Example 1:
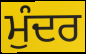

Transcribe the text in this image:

ਮੁੰਦਰ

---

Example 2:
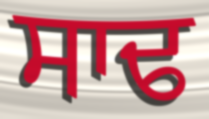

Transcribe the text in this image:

ਸਾਢ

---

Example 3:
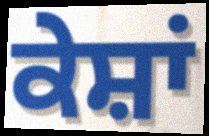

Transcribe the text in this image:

ਕੇਸ਼ਾਂ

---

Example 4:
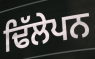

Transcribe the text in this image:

ਢਿੱਲੇਪਨ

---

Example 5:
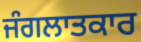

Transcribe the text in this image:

ਜੰਗਲਾਤਕਾਰ